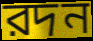
রদন